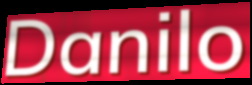
Danilo